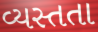
વ્યસ્તતા